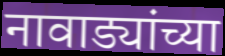
नावाड्यांच्या